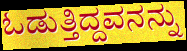
ಓಡುತ್ತಿದ್ದವನನ್ನು